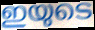
ഇയുടെ